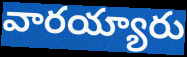
వారయ్యారు